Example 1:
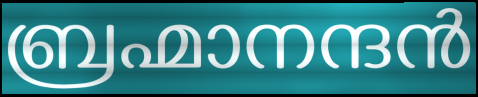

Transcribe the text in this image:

ബ്രഹ്മാനന്ദൻ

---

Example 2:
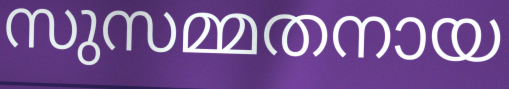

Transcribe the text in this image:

സുസമ്മതനായ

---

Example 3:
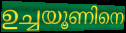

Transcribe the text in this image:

ഉച്ചയൂണിനെ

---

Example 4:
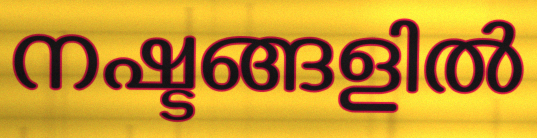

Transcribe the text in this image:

നഷ്ടങ്ങളിൽ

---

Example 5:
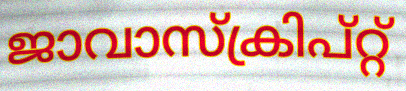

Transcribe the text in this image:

ജാവാസ്ക്രിപ്റ്റ്